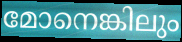
മോനെങ്കിലും